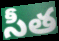
సీత